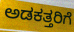
ಅಡಕತ್ತರಿಗೆ